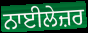
ਨਾਈਲੇਜ਼ਰ